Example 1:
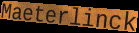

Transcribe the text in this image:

Maeterlinck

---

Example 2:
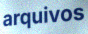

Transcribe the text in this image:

arquivos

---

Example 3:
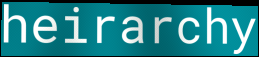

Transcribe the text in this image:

heirarchy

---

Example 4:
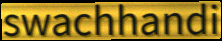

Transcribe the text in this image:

swachhandi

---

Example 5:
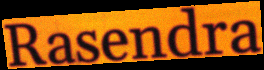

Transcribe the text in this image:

Rasendra